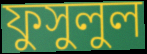
ফুসুলুল